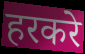
हरकरे